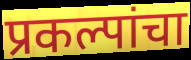
प्रकल्पांचा